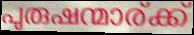
പുരുഷന്മാര്ക്ക്